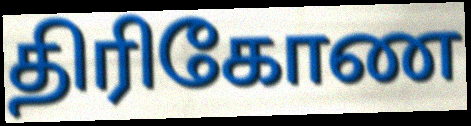
திரிகோண